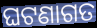
ଘଟଣାଗତ